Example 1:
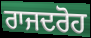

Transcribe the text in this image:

ਰਾਜਦਰੋਹ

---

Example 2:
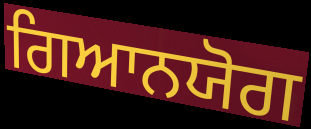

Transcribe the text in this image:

ਗਿਆਨਯੋਗ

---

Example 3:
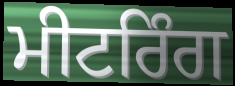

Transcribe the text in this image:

ਮੀਟਰਿੰਗ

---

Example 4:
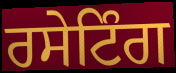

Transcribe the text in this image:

ਰਸੇਟਿੰਗ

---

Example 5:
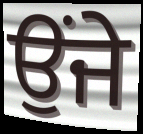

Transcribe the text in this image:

ਉਂਜੇ